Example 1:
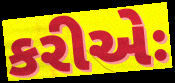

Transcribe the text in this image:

કરીએઃ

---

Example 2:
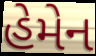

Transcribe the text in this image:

હેમેન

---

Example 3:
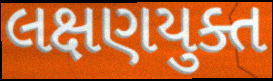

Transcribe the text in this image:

લક્ષણયુક્ત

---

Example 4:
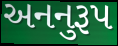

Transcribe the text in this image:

અનનુરૂપ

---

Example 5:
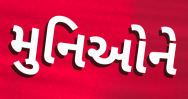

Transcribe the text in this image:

મુનિઓને